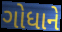
ગોધાને